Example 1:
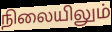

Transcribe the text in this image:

நிலையிலும்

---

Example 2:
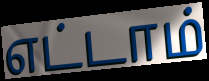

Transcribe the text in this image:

எட்டாம்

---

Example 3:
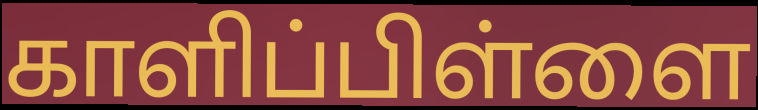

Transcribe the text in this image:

காளிப்பிள்ளை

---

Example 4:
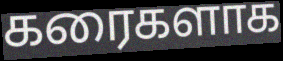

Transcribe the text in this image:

கரைகளாக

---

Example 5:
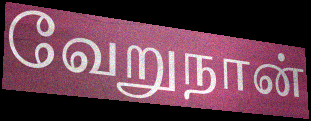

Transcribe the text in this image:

வேறுநான்